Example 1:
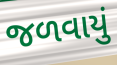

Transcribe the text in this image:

જળવાયું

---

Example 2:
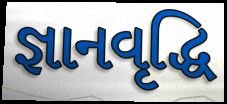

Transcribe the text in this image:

જ્ઞાનવૃદ્ધિ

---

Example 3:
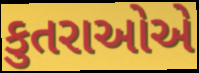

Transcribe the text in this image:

કુતરાઓએ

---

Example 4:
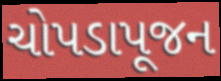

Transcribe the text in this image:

ચોપડાપૂજન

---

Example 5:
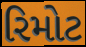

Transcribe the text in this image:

રિમોટ